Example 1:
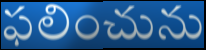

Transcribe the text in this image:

ఫలించును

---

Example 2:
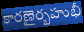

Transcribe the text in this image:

కారణైర్బహుభీ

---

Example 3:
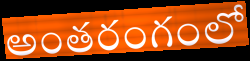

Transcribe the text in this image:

అంతరంగంలో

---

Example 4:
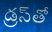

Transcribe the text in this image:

డ్రస్‌తో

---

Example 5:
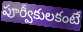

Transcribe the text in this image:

పూర్వీకులకంటే